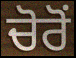
ਚੋਰੋਂ